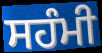
ਸਹੰਮੀ